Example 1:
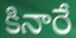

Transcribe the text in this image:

కినారే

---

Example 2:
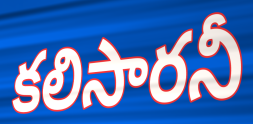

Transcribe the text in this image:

కలిసారనీ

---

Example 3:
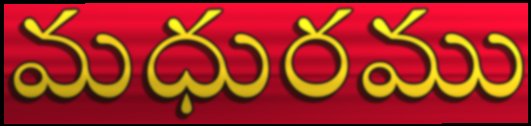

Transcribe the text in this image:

మధురము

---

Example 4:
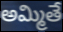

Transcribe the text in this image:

అమ్మితే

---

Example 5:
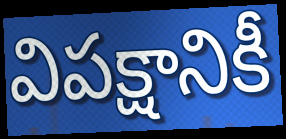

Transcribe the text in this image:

విపక్షానికీ